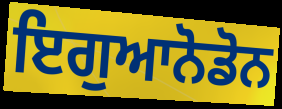
ਇਗੁਆਨੋਡੋਨ